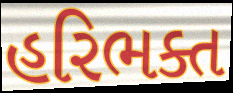
હરિભક્ત